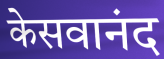
केसवानंद